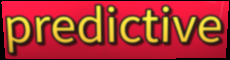
predictive